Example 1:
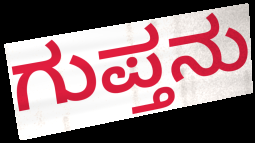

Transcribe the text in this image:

ಗುಪ್ತನು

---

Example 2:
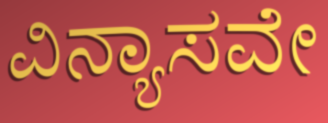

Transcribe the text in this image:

ವಿನ್ಯಾಸವೇ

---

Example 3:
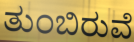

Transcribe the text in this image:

ತುಂಬಿರುವೆ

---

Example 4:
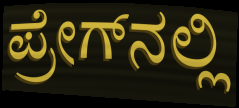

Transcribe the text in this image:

ಪ್ರೇಗ್‌ನಲ್ಲಿ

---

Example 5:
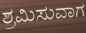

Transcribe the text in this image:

ಶ್ರಮಿಸುವಾಗ